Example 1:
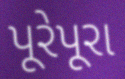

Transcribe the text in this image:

પૂરેપૂરા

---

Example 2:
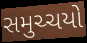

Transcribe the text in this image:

સમુચ્ચયો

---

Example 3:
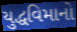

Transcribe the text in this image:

યુદ્ધવિમાનો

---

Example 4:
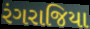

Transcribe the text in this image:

રંગરાજિયા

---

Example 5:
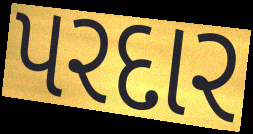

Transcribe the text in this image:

પરદાર